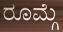
ರೂಮ್ಗೆ